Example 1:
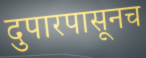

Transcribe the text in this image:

दुपारपासूनच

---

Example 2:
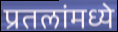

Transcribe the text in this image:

प्रतलांमध्ये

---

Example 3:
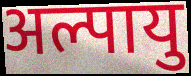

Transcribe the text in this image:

अल्पायु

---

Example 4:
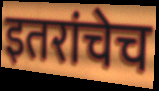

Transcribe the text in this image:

इतरांचेच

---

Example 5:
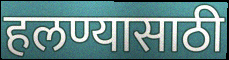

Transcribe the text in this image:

हलण्यासाठी